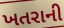
ખતરાની